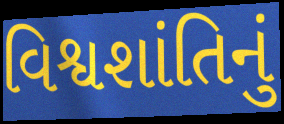
વિશ્વશાંતિનું